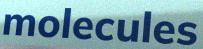
molecules